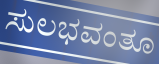
ಸುಲಭವಂತೂ